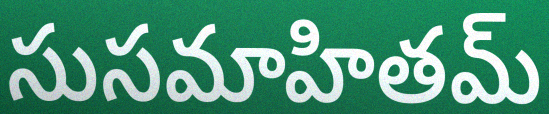
సుసమాహితమ్